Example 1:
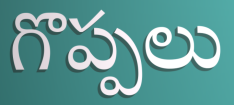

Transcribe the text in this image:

గొప్పలు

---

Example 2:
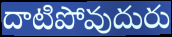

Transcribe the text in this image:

దాటిపోవుదురు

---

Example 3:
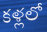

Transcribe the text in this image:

కళ్లలో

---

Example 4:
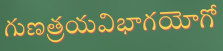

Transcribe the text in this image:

గుణత్రయవిభాగయోగో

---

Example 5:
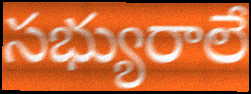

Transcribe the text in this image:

సభ్యురాలే